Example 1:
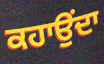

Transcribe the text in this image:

ਕਹਾਉਂਦਾ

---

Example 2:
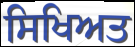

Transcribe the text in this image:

ਸਿਖਿਅਤ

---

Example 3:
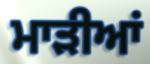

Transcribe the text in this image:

ਮਾੜੀਆਂ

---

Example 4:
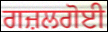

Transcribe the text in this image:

ਗਜ਼ਲਗੋਈ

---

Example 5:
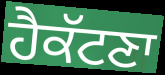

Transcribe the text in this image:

ਹੈਕੱਟਣਾ